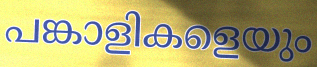
പങ്കാളികളെയും